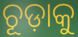
ଚୂଡ଼ାକୁ